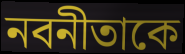
নবনীতাকে